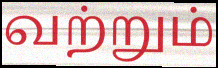
வற்றும்